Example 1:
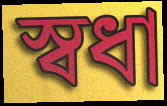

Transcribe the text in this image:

স্বধা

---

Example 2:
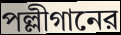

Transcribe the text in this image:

পল্লীগানের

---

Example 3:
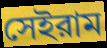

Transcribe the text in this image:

সেইরাম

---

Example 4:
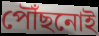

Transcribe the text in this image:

পৌঁছনোই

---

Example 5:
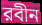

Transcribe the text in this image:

রবীন